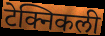
टेक्निकली